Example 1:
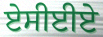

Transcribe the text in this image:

ਏਸੀਈਏ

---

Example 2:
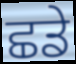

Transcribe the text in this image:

ਛਡੇ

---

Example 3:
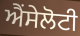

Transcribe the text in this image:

ਐਂਸੇਲੋਟੀ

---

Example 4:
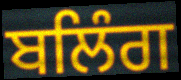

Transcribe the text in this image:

ਬਲਿੰਗ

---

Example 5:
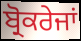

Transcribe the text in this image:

ਬ੍ਰੋਕਰੇਜਾਂ